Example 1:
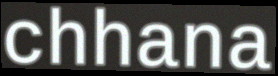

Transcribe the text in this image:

chhana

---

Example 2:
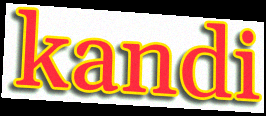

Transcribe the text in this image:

kandi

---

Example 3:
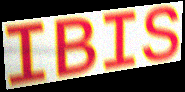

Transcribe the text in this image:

IBIS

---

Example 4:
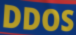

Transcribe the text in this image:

DDOS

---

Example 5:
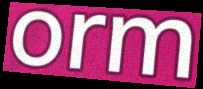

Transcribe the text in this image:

orm